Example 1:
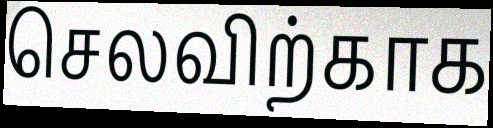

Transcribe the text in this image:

செலவிற்காக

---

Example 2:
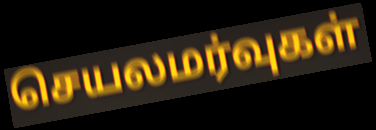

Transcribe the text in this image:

செயலமர்வுகள்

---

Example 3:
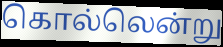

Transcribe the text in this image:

கொல்லென்று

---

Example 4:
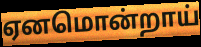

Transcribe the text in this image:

ஏனமொன்றாய்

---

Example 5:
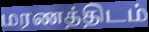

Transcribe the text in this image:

மரணத்திடம்